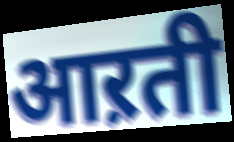
आऱती